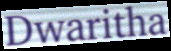
Dwaritha